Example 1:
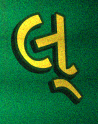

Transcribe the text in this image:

લ્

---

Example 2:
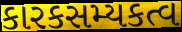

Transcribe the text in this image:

કારકસમ્યકત્વ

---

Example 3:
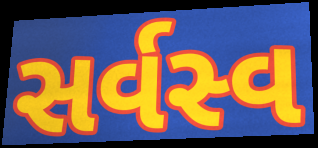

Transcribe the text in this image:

સર્વસ્વ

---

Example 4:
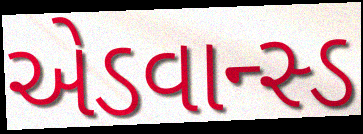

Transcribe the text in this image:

એડવાન્સ્ડ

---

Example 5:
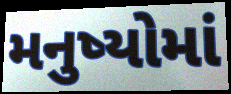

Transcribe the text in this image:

મનુષ્યોમાં